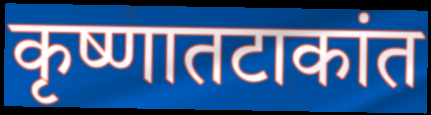
कृष्णातटाकांत